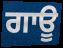
ਗਾਊ